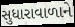
સુધારાવાળાને